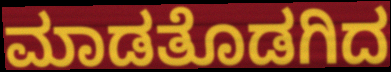
ಮಾಡತೊಡಗಿದ